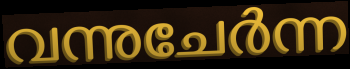
വന്നുചേർന്ന